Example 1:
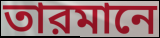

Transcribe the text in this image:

তারমানে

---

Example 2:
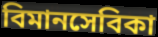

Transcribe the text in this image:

বিমানসেবিকা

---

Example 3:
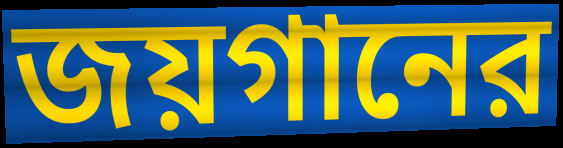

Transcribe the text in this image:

জয়গানের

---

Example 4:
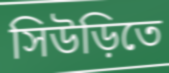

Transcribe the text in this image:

সিউড়িতে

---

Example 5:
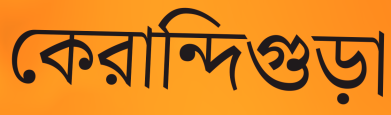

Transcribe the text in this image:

কেরান্দিগুড়া